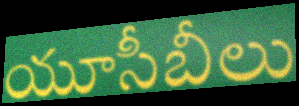
యూసీబీలు